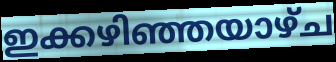
ഇക്കഴിഞ്ഞയാഴ്ച